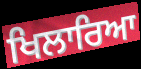
ਖਿਲਾਰਿਆ